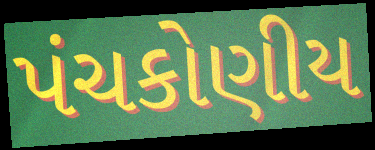
પંચકોણીય